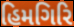
હિમગિરિ